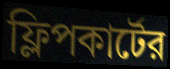
ফ্লিপকার্টের